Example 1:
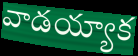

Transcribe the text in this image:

వాడయ్యాక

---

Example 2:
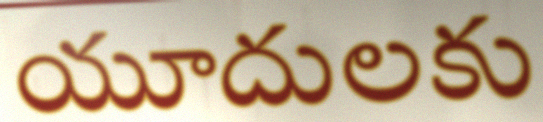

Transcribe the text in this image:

యూదులకు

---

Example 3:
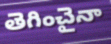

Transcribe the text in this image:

తెగించైనా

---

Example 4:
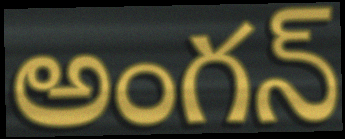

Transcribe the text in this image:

అంగన్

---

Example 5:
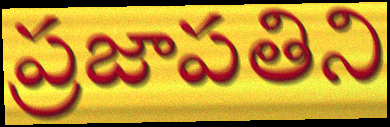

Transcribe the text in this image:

ప్రజాపతిని